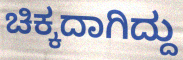
ಚಿಕ್ಕದಾಗಿದ್ದು